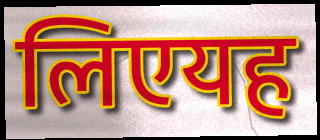
लिएयह